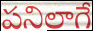
పనిలాగే